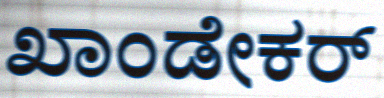
ಖಾಂಡೇಕರ್